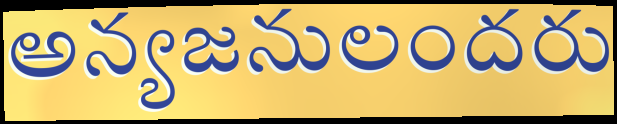
అన్యజనులందరు